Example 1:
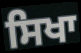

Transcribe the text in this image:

ਸਿਖਾ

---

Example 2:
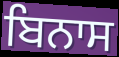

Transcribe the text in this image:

ਬਿਨਾਸ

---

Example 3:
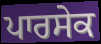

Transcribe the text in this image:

ਪਾਰਸੇਕ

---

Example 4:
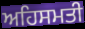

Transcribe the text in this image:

ਅਹਿਸਮਤੀ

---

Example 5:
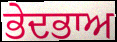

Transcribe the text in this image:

ਭੇਦਭਾਅ